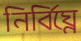
নিৰ্বিঘ্নে